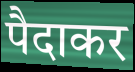
पैदाकर